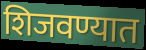
शिजवण्यात